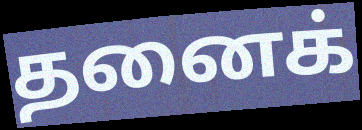
தனைக்